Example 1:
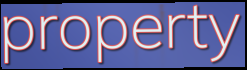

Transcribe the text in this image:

property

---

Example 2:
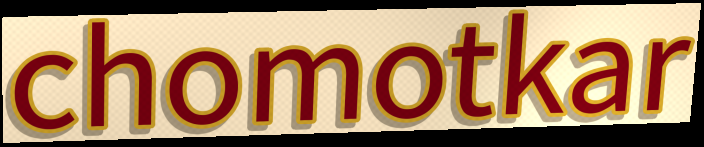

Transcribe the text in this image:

chomotkar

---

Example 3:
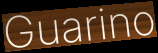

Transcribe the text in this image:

Guarino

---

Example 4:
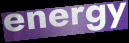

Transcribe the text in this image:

energy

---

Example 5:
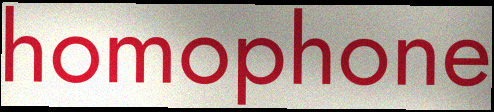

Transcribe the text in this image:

homophone